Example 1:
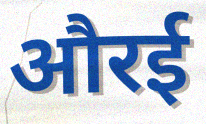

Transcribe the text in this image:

औरई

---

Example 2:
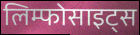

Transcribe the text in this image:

लिम्फोसाइट्स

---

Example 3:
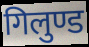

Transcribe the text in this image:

गिलुण्ड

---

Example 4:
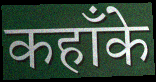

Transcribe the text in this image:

कहाँके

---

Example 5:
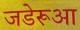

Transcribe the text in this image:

जडेरूआ